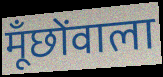
मूँछोंवाला